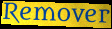
Remover